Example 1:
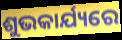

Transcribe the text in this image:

ଶୁଭକାର୍ଯ୍ୟରେ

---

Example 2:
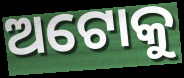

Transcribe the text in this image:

ଅଟୋକୁ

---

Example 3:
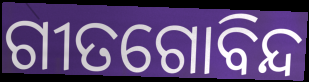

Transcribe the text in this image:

ଗୀତଗୋବିନ୍ଦ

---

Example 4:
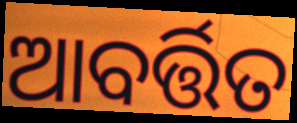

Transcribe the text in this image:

ଆବର୍ତ୍ତିତ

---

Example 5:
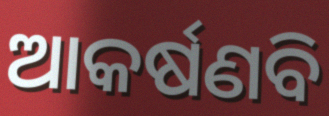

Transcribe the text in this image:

ଆକର୍ଷଣବି